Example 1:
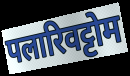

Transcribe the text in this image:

पलारिवट्टोम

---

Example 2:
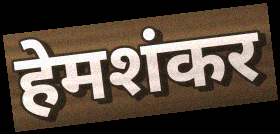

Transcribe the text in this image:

हेमशंकर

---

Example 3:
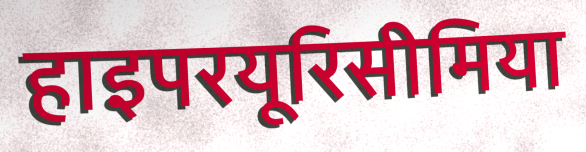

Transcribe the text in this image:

हाइपरयूरिसीमिया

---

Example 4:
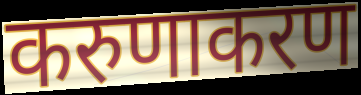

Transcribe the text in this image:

करुणाकरण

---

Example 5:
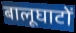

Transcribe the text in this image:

बालूघाटों